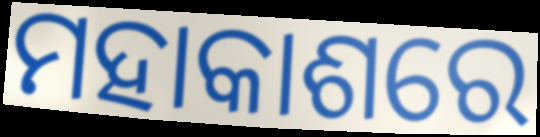
ମହାକାଶରେ